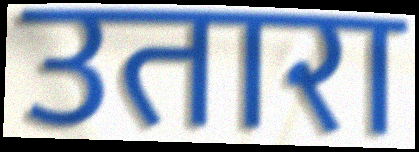
उतारा